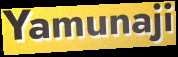
Yamunaji